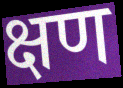
क्षण